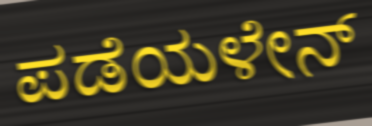
ಪಡೆಯಳೇನ್